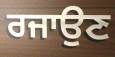
ਰਜਾਉਣ